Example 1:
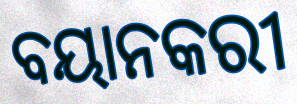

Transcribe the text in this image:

ବୟାନକରୀ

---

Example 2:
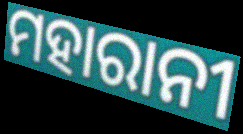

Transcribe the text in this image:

ମହାରାନୀ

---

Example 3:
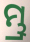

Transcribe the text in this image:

ମ୍ଭ୍ର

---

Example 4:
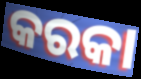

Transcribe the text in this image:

କରକା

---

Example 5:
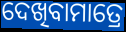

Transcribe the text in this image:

ଦେଖିବାମାତ୍ରେ